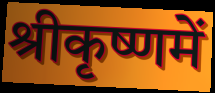
श्रीकृष्णमें